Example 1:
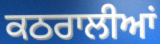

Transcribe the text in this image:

ਕਠਰਾਲੀਆਂ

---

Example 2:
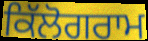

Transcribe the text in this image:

ਕਿੱਲੋਗਰਾਮ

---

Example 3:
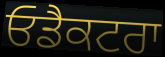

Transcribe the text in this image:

ਓਡੈਕਟਰਾ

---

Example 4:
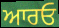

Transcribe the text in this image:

ਆਰਓ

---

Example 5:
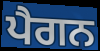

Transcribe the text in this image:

ਪੈਗਨ